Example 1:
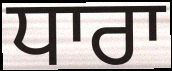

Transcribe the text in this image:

ਧਾਰਾ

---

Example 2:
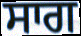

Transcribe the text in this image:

ਸਾਗ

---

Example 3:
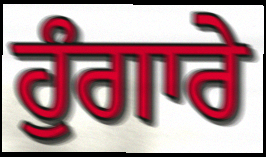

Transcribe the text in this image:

ਹੁੰਗਾਰੇ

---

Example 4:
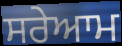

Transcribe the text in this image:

ਸਰੇਆਮ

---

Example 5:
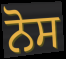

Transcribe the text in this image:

ਨੋਸ